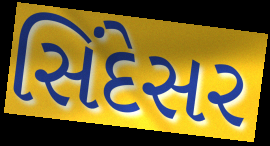
સિંદેસર